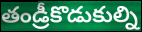
తండ్రీకొడుకుల్ని